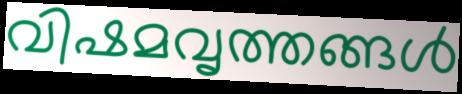
വിഷമവൃത്തങ്ങൾ